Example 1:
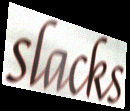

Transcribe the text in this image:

slacks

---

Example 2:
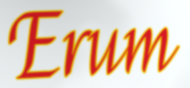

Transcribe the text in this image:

Erum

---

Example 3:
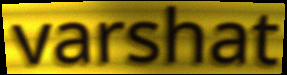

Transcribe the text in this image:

varshat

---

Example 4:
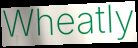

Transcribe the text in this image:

Wheatly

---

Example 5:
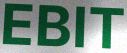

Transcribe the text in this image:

EBIT